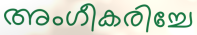
അംഗീകരിച്ചേ